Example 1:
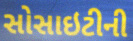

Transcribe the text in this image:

સોસાઇટીની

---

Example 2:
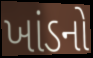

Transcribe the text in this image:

ખાંડનો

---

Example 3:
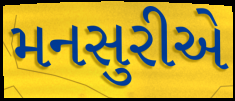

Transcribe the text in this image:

મનસુરીએ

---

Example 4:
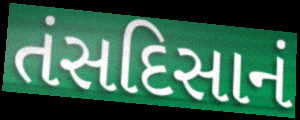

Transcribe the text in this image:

તંસદિસાનં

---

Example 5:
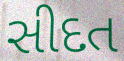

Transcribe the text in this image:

સીદત